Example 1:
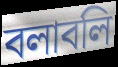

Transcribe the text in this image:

বলাবলি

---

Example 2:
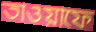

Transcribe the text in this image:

তাওয়াফে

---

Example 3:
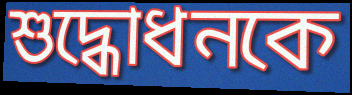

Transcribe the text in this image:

শুদ্ধোধনকে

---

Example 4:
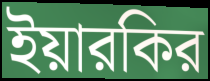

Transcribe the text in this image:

ইয়ারকির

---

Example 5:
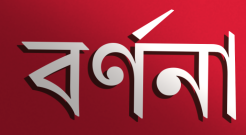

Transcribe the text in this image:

বর্ণনা